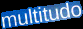
multitudo